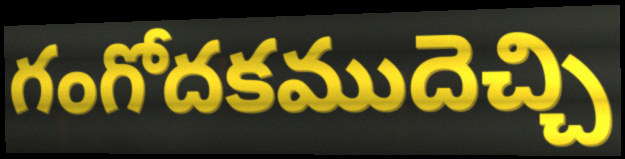
గంగోదకముదెచ్చి